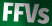
FFVs